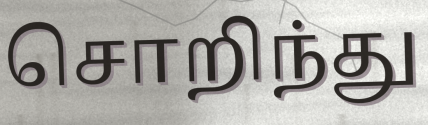
சொறிந்து